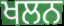
ਖਲਨ